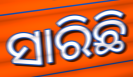
ସାରିଛି